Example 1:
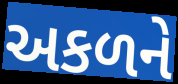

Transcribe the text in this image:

અકળને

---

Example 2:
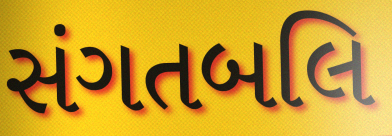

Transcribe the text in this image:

સંગતબલિ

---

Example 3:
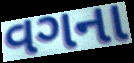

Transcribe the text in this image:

વગના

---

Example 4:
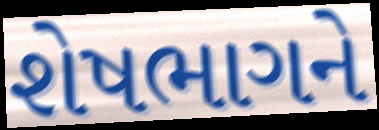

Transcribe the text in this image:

શેષભાગને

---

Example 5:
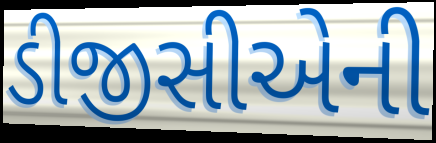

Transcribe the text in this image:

ડીજીસીએની